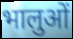
भालुओं